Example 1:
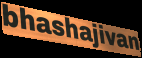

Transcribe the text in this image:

bhashajivan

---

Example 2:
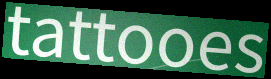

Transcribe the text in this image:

tattooes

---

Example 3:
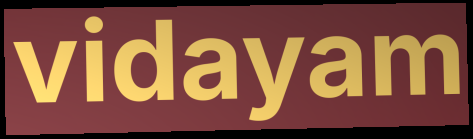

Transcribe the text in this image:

vidayam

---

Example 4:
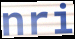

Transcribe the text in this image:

nri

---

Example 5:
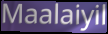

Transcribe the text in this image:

Maalaiyil